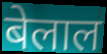
बेलाल